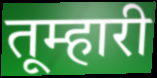
तूम्हारी